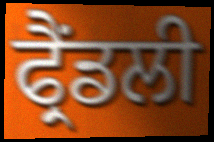
ਫ੍ਰੈਂਡਲੀ